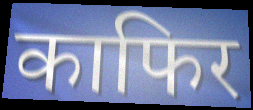
काफिर